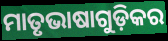
ମାତୃଭାଷାଗୁଡ଼ିକର